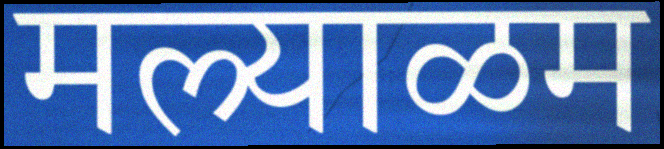
मल्याळम